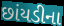
છાંયડીના